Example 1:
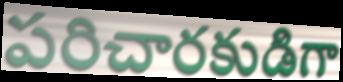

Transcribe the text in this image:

పరిచారకుడిగా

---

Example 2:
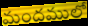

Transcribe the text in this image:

మందములో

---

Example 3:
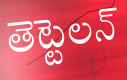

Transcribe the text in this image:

తెట్టెలన్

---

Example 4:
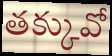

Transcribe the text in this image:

తక్కువో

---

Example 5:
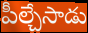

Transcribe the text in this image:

పీల్చేసాడు